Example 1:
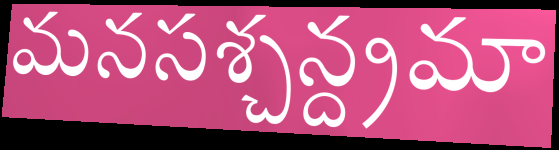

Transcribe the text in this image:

మనసశ్చన్ద్రమా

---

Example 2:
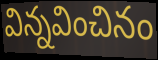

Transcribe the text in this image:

విన్నవించినం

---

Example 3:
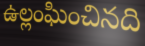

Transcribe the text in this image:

ఉల్లంఘించినది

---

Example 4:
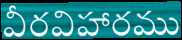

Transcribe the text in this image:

వీరవిహారము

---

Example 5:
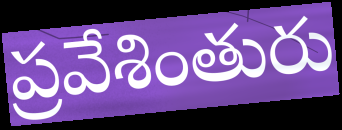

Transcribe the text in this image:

ప్రవేశింతురు